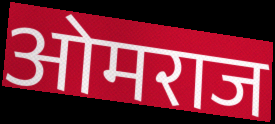
ओमराज